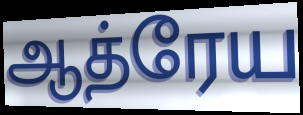
ஆத்ரேய